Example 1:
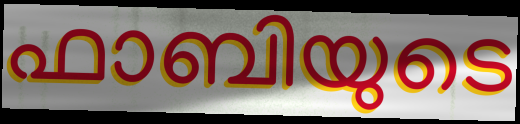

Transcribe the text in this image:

ഫാബിയുടെ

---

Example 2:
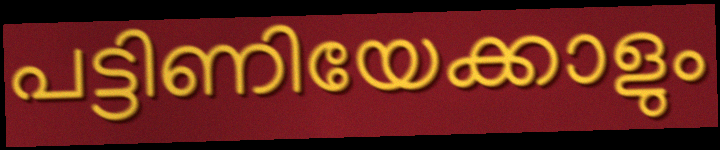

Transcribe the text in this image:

പട്ടിണിയേക്കാളും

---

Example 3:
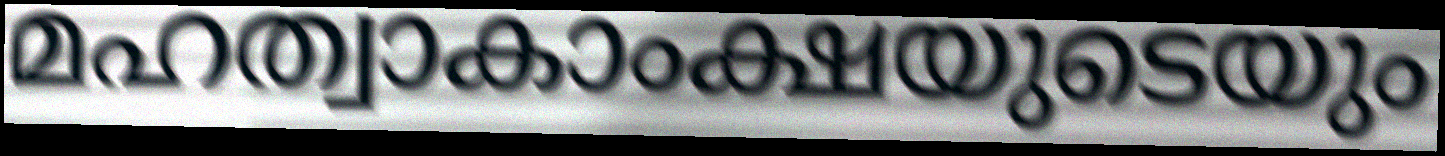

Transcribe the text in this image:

മഹത്വാകാംക്ഷയുടെയും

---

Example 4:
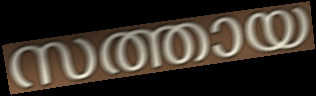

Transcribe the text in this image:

സത്തായ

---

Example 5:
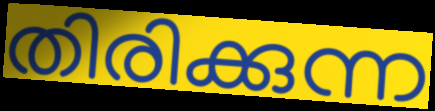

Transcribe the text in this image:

തിരിക്കുന്ന